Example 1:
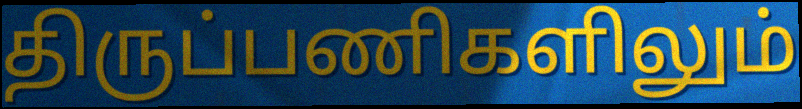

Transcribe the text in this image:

திருப்பணிகளிலும்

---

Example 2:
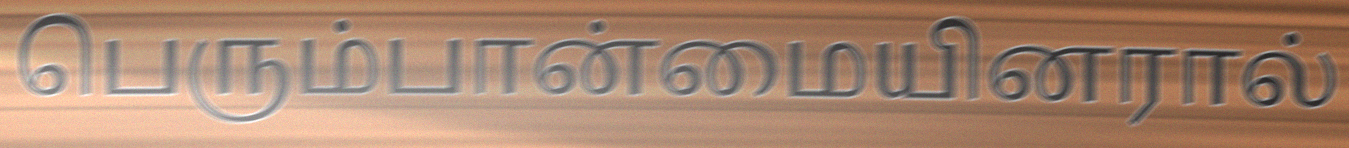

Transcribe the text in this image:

பெரும்பான்மையினரால்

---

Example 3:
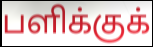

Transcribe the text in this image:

பளிக்குக்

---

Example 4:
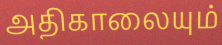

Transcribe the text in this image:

அதிகாலையும்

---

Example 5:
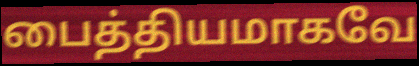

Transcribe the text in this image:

பைத்தியமாகவே